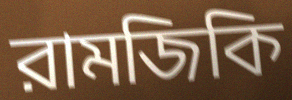
রামজিকি